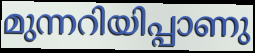
മുന്നറിയിപ്പാണു